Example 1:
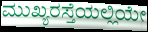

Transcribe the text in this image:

ಮುಖ್ಯರಸ್ತೆಯಲ್ಲಿಯೇ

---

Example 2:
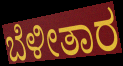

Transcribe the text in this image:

ಬೆಳೀತಾರ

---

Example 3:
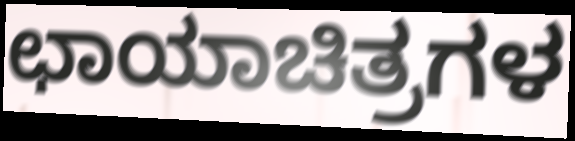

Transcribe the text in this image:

ಛಾಯಾಚಿತ್ರಗಳ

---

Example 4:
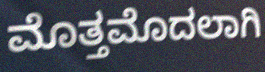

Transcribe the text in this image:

ಮೊತ್ತಮೊದಲಾಗಿ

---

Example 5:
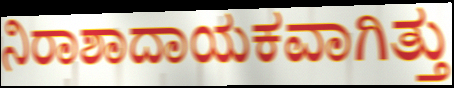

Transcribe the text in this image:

ನಿರಾಶಾದಾಯಕವಾಗಿತ್ತು